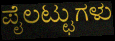
ಪೈಲಟ್ಟುಗಳು